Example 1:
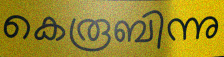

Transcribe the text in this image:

കെരൂബിന്നു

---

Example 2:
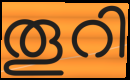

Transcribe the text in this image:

തൂറി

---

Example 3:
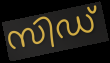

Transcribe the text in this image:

സിഡ്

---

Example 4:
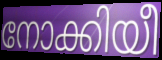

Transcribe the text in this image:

നോക്കിയീ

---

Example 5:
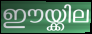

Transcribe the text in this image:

ഈയ്ക്കില